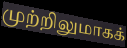
முற்றிலுமாகக்